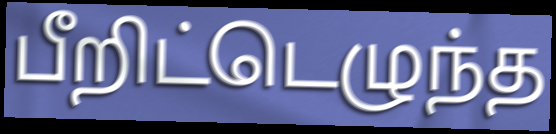
பீறிட்டெழுந்த